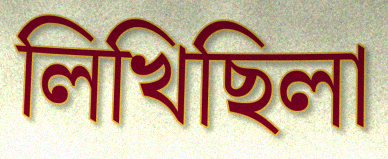
লিখিছিলা